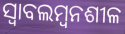
ସ୍ୱାବଲମ୍ୱନଶୀଳ